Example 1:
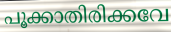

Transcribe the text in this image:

പൂക്കാതിരിക്കവേ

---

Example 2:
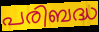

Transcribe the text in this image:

പരിബദ്ധ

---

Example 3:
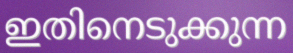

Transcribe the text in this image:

ഇതിനെടുക്കുന്ന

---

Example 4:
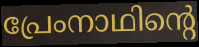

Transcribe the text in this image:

പ്രേംനാഥിന്റെ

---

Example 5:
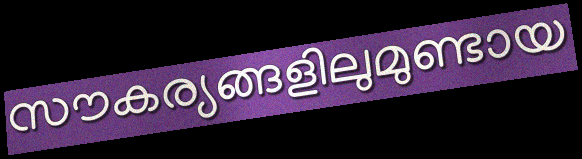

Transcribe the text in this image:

സൗകര്യങ്ങളിലുമുണ്ടായ